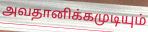
அவதானிக்கமுடியும்